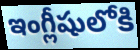
ఇంగ్లీషులోకి